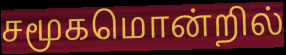
சமூகமொன்றில்